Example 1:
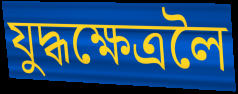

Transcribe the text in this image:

যুদ্ধক্ষেত্ৰলৈ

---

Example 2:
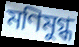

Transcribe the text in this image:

মণিমুগ্ধ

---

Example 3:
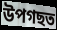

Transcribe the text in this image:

উপগছত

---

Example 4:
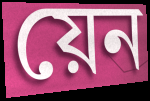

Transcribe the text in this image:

য়েন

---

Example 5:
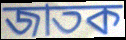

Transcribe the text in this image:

জাতক